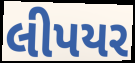
લીપયર